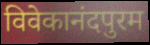
विवेकानंदपुरम